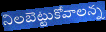
నిలబెట్టుకోవాలన్న